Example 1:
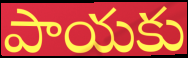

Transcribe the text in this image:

పాయకు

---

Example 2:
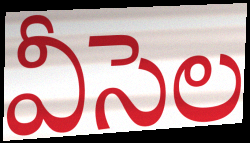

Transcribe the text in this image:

వీసెల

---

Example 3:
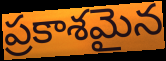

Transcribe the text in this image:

ప్రకాశమైన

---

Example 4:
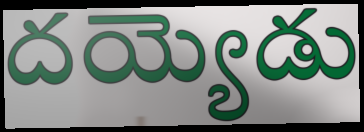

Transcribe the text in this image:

దయ్యెడు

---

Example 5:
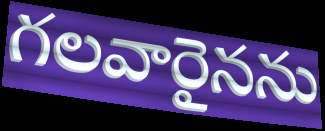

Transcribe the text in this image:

గలవారైనను